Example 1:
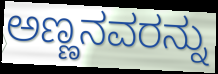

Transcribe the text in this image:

ಅಣ್ಣನವರನ್ನು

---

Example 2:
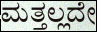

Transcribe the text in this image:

ಮತ್ತಲ್ಲದೇ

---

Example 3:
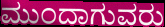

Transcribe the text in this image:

ಮುಂದಾಗುವರು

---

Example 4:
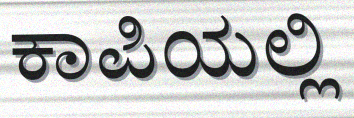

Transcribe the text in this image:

ಕಾಪಿಯಲ್ಲಿ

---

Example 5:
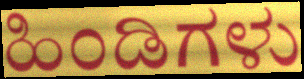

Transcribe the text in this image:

ಹಿಂಡಿಗಳು